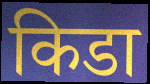
किडा